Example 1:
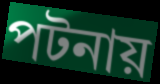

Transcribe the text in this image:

পটনায়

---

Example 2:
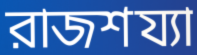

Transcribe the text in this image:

রাজশয্যা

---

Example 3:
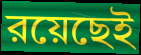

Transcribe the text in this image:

রয়েছেই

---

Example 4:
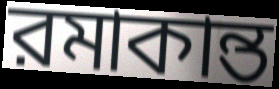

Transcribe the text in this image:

রমাকান্ত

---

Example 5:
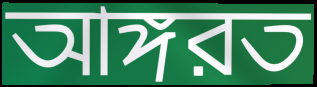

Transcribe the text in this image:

আঙ্গরত